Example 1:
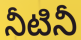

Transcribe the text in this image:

నీటినీ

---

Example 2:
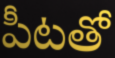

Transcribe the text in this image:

పీటతో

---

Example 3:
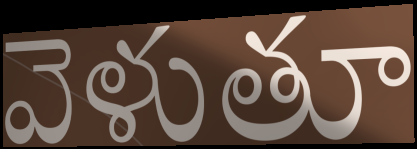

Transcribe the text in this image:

వెళుతూ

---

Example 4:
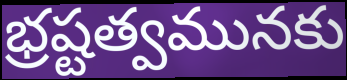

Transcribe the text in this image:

భ్రష్టత్వమునకు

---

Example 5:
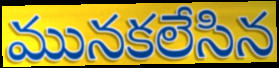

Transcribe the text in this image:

మునకలేసిన